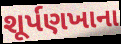
શૂર્પણખાના